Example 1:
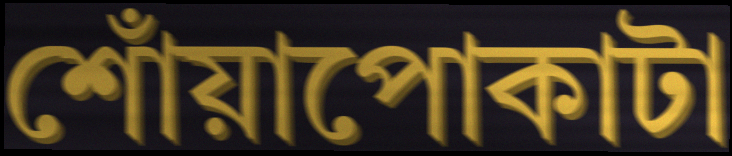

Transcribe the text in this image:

শোঁয়াপোকাটা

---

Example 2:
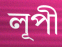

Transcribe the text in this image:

লূপী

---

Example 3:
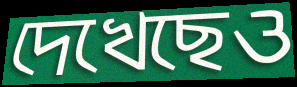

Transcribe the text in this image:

দেখেছেও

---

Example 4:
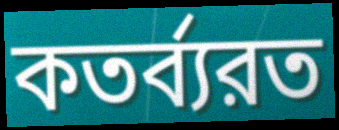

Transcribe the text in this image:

কতর্ব্যরত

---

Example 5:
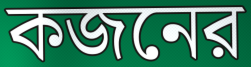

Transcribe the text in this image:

কজনের